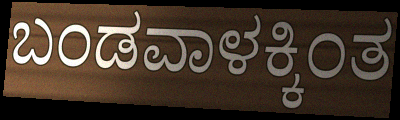
ಬಂಡವಾಳಕ್ಕಿಂತ